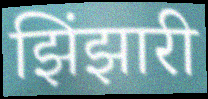
झिंझारी